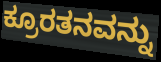
ಕ್ರೂರತನವನ್ನು